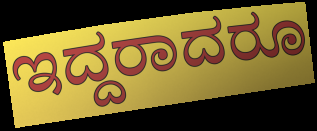
ಇದ್ದರಾದರೂ